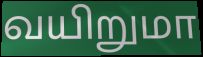
வயிறுமா